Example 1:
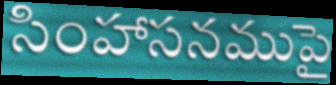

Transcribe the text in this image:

సింహాసనముపై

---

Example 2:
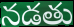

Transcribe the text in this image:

నడతు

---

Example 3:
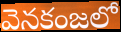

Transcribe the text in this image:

వెనకంజలో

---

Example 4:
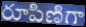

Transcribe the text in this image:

రూపిణిగా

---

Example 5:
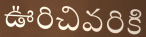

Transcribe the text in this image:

ఊరిచివరికి